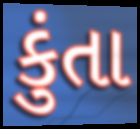
કુંતા